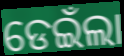
ଡେଇଁଲା